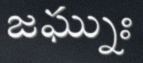
జఘ్నుః